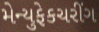
મેન્યુફેકચરીંગ